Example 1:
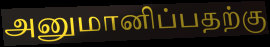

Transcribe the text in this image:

அனுமானிப்பதற்கு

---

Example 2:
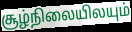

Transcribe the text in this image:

சூழ்நிலையிலயும்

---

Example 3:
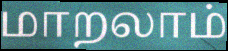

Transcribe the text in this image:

மாறலாம்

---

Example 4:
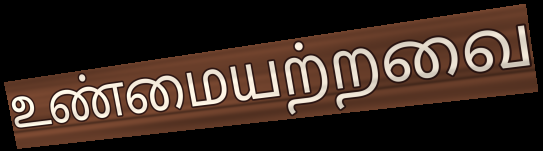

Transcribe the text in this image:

உண்மையற்றவை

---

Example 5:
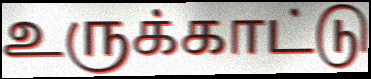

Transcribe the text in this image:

உருக்காட்டு